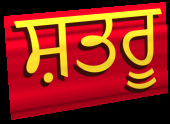
ਸ਼ਤਰੂ